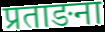
प्रताङना